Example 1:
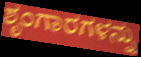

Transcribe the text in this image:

ಶೃಂಗಾರಗಳನ್ನು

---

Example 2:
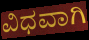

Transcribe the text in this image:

ವಿಧವಾಗಿ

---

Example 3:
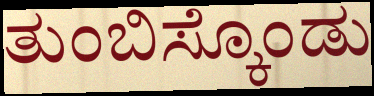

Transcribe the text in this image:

ತುಂಬಿಸ್ಕೊಂಡು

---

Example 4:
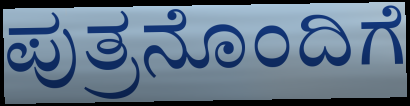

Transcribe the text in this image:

ಪುತ್ರನೊಂದಿಗೆ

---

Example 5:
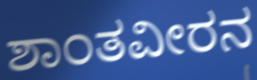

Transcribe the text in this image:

ಶಾಂತವೀರನ